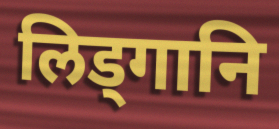
लिड्गानि